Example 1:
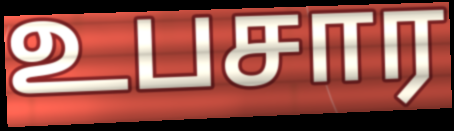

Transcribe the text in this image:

உபசார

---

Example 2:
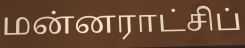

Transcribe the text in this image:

மன்னராட்சிப்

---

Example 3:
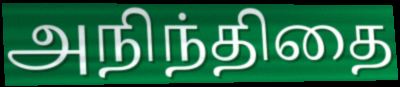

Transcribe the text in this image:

அநிந்திதை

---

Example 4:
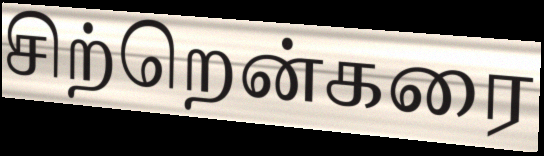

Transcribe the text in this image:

சிற்றென்கரை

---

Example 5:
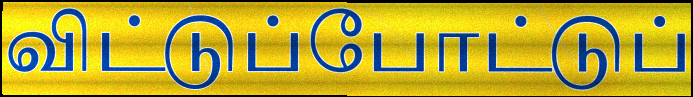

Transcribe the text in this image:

விட்டுப்போட்டுப்